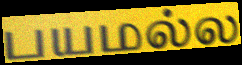
பயமல்ல